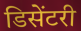
डिसेंटरी